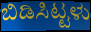
ಬಿಡಿಸಿಟ್ಟಳು